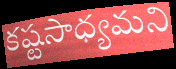
కష్టసాధ్యమని